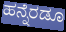
ಹನ್ನೆರಡೂ